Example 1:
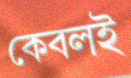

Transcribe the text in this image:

কেবলই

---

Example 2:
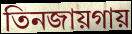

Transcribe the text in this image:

তিনজায়গায়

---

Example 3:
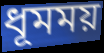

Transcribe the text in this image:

ধূমময়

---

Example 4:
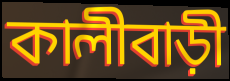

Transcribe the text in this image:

কালীবাড়ী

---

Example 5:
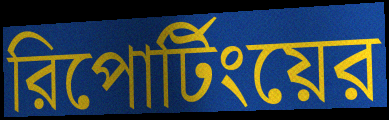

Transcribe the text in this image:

রিপোর্টিংয়ের